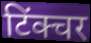
टिंक्चर